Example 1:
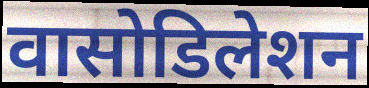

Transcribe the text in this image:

वासोडिलेशन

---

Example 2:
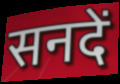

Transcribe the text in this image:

सनदें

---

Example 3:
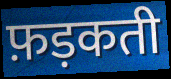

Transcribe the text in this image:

फ़ड़कती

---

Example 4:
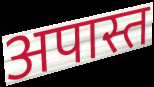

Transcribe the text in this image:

अपास्‍त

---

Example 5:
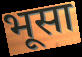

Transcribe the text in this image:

भूसा